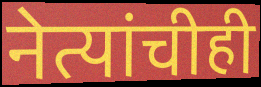
नेत्यांचीही